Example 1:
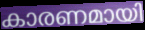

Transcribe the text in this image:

കാരണമായി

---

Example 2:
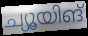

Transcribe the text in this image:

ച്യൂയിങ്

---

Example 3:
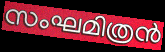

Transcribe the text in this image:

സംഘമിത്രൻ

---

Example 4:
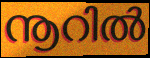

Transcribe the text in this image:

നൂറിൽ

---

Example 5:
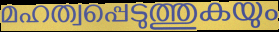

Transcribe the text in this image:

മഹത്വപ്പെടുത്തുകയും